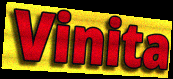
Vinita